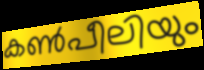
കൺപീലിയും